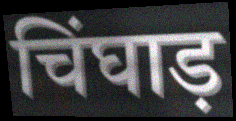
चिंघाड़